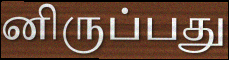
னிருப்பது